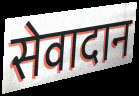
सेवादान